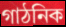
গাঠনিক